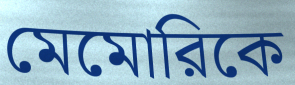
মেমোরিকে